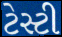
ટેસ્ટી